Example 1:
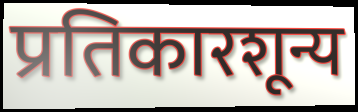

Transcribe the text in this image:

प्रतिकारशून्य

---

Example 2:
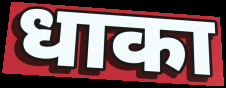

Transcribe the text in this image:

धाका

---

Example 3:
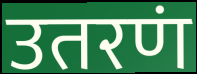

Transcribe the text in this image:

उतरणं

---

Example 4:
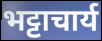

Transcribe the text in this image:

भट्टाचार्य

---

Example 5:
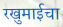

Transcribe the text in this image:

रखुमाईचा